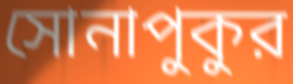
সোনাপুকুর